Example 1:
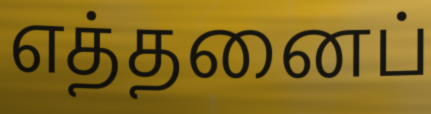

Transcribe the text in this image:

எத்தனைப்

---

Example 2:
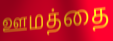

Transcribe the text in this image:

ஊமத்தை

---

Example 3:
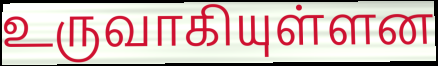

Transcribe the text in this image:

உருவாகியுள்ளன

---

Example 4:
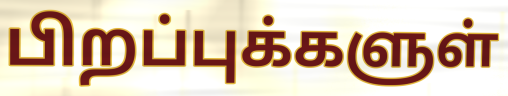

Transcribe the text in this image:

பிறப்புக்களுள்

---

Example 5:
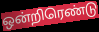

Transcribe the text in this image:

ஒன்றிரெண்டு